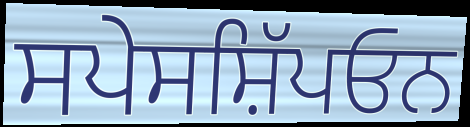
ਸਪੇਸਸ਼ਿੱਪਓਨ